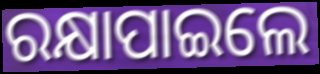
ରକ୍ଷାପାଇଲେ